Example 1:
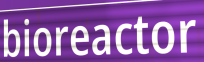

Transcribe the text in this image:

bioreactor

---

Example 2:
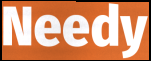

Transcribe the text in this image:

Needy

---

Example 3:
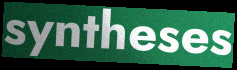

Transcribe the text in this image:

syntheses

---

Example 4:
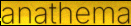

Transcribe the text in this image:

anathema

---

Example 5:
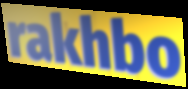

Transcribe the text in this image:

rakhbo